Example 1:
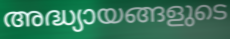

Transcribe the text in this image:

അദ്ധ്യായങ്ങളുടെ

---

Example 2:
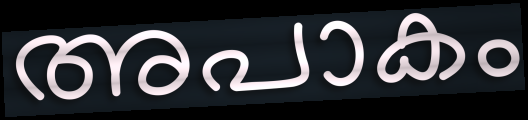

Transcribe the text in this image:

അപാകം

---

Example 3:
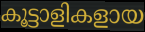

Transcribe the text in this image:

കൂട്ടാളികളായ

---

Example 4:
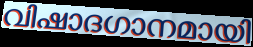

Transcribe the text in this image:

വിഷാദഗാനമായി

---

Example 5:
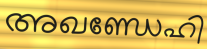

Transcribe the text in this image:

അഖണ്ഡേഹി